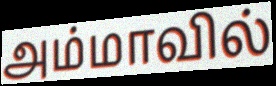
அம்மாவில்